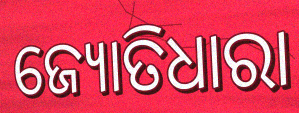
ଜ୍ଯୋତିଧାରା